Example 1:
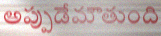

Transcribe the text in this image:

అప్పుడేమౌతుంది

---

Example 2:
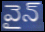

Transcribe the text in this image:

వైన్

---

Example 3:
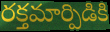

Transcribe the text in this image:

రక్తమార్పిడికి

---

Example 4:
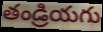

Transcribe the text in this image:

తండ్రియగు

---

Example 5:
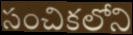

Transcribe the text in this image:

సంచికలోని